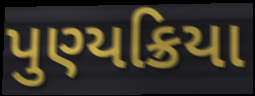
પુણ્યક્રિયા